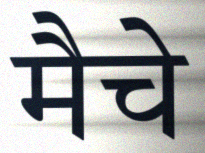
मैचे